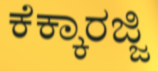
ಕೆಕ್ಕಾರಜ್ಜಿ